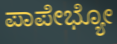
ಪಾಪೇಭ್ಯೋ